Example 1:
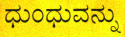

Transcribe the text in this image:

ಧುಂಧುವನ್ನು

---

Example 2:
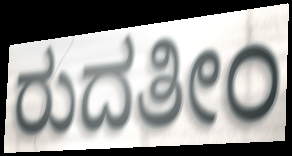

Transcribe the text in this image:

ರುದತೀಂ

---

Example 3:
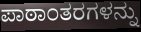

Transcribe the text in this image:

ಪಾಠಾಂತರಗಳನ್ನು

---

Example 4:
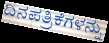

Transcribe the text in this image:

ದಿನಪತ್ರಿಕೆಗಳನ್ನು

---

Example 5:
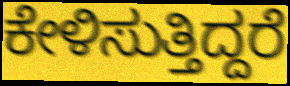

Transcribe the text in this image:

ಕೇಳಿಸುತ್ತಿದ್ದರೆ